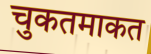
चुकतमाकत